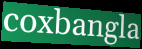
coxbangla